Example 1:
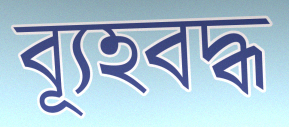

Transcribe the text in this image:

ব্যূহবদ্ধ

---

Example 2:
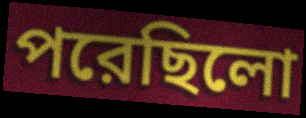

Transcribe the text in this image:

পরেছিলো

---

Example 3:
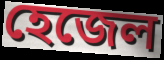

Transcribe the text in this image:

হেজেল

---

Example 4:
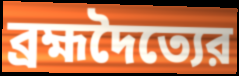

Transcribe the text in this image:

ব্রহ্মদৈত্যের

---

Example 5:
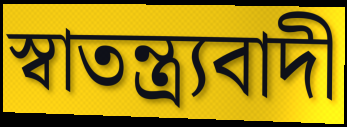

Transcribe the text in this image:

স্বাতন্ত্র্যবাদী